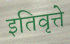
इतिवृत्ते